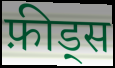
फ़ीड्स